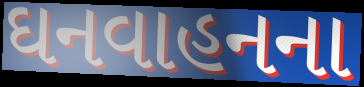
ઘનવાહનના